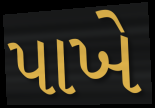
પાખે